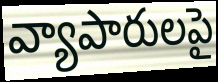
వ్యాపారులపై